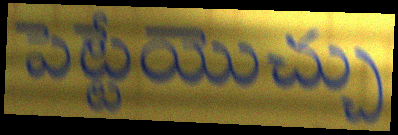
పెట్టేయొచ్చు